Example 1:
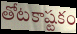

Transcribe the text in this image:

తోటకాష్టకం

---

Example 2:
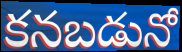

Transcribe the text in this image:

కనబడునో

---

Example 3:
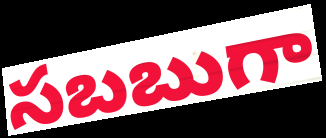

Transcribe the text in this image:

సబబుగా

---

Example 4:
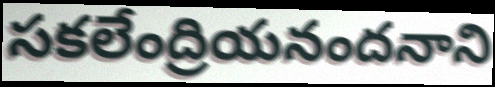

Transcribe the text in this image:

సకలేంద్రియనందనాని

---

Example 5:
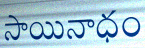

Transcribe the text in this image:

సాయినాధం